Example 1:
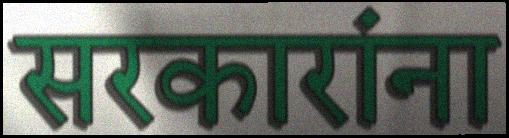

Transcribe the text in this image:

सरकारांना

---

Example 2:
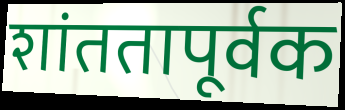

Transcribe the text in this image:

शांततापूर्वक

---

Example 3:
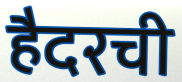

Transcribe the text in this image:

हैदरची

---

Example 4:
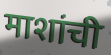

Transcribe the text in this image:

माशांची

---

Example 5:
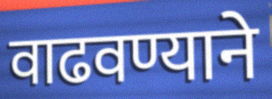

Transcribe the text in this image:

वाढवण्याने